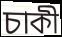
চাকী